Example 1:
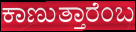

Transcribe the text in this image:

ಕಾಣುತ್ತಾರೆಂಬ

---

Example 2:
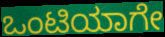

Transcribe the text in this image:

ಒಂಟಿಯಾಗೇ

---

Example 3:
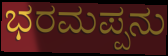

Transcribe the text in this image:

ಭರಮಪ್ಪನು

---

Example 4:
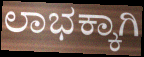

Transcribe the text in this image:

ಲಾಭಕ್ಕಾಗಿ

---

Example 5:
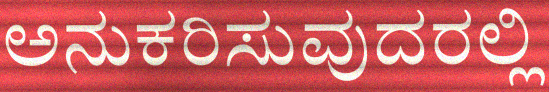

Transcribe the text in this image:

ಅನುಕರಿಸುವುದರಲ್ಲಿ